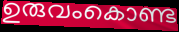
ഉരുവംകൊണ്ട